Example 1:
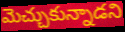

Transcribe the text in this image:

మెచ్చుకున్నాడని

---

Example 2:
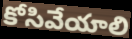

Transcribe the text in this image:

కోసివేయాలి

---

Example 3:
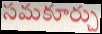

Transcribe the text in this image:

సమకూర్చు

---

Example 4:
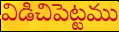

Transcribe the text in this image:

విడిచిపెట్టము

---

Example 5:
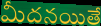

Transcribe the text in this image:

మీదనయితే